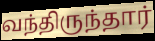
வந்திருந்தார்